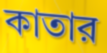
কাতার